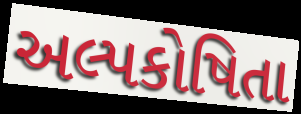
અલ્પકોષિતા